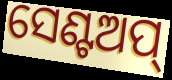
ସେଣ୍ଟଅପ୍